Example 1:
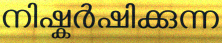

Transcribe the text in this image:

നിഷ്കർഷിക്കുന്ന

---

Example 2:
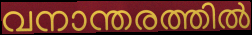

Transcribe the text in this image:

വനാന്തരത്തിൽ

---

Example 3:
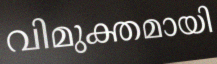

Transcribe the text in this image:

വിമുക്തമായി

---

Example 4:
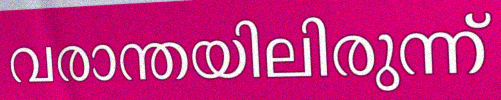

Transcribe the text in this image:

വരാന്തയിലിരുന്ന്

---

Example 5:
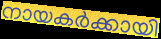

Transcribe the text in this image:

നായകർക്കായി